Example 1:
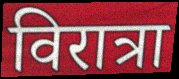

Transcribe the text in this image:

विरात्रा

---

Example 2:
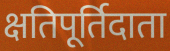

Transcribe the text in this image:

क्षतिपूर्तिदाता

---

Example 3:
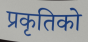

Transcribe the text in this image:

प्रकृतिको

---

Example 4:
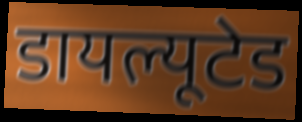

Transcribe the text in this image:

डायल्यूटेड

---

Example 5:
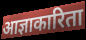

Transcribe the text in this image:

आज्ञाकारिता